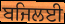
ਬਜਿਲਈ